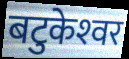
बटुकेश्‍वर